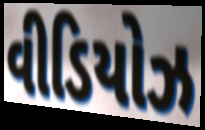
વીડિયોઝ